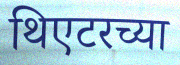
थिएटरच्या